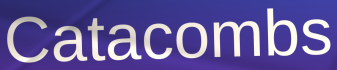
Catacombs